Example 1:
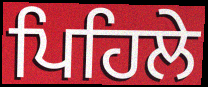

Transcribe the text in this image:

ਪਿਹਿਲੇ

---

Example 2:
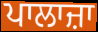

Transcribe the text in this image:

ਪਾਲਾਜ਼ਾ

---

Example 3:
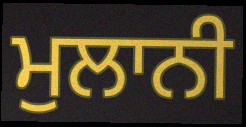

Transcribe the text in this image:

ਮੁਲਾਨੀ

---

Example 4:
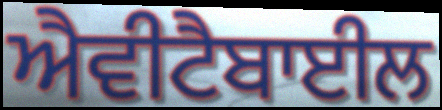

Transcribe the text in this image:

ਐਵੀਟੈਬਾਈਲ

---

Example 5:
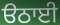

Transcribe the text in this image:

ੳਠਾਈ